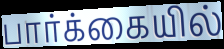
பார்க்கையில்